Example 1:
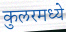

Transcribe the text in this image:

कुलरमध्ये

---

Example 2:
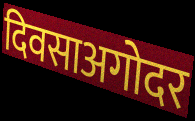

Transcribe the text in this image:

दिवसाअगोदर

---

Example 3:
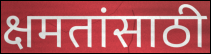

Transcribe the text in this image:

क्षमतांसाठी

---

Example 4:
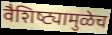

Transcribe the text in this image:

वैशिष्ट्यामुळेच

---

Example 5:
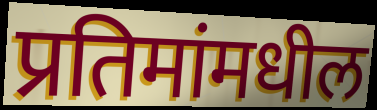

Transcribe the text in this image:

प्रतिमांमधील